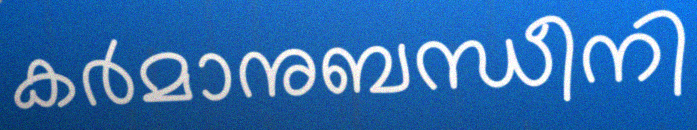
കർമാനുബന്ധീനി